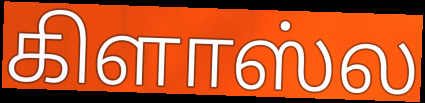
கிளாஸ்ல